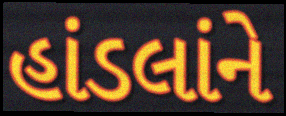
હાંડલાંને